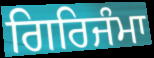
ਗਿਰਿਜੰਮਾ